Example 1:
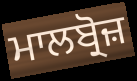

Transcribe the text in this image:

ਮਾਲਬ੍ਰੋਜ਼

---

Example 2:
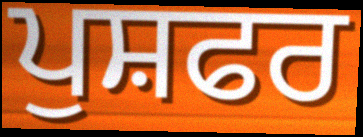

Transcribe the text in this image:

ਪੁਸ਼ਫਰ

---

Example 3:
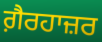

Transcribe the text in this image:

ਗ਼ੈਰਹਾਜ਼ਰ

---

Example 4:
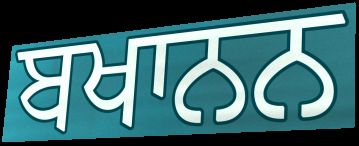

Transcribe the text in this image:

ਬਖਾਨਨ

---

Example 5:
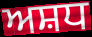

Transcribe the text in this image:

ਅਸ਼ਧ